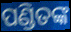
ପଣ୍ଡିତଙ୍କ